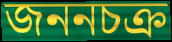
জননচক্র